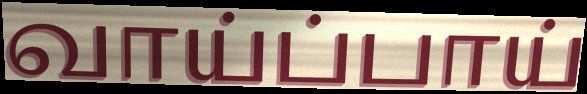
வாய்ப்பாய்